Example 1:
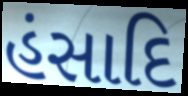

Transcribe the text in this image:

હંસાદિ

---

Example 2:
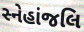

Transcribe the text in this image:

સ્નેહાંજલિ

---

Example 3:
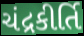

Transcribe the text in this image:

ચંદ્રકીર્તિ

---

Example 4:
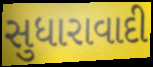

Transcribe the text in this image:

સુધારાવાદી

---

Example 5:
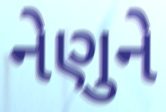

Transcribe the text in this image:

નેણુને